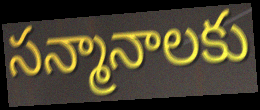
సన్మానాలకు